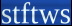
stftws